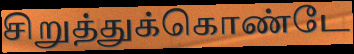
சிறுத்துக்கொண்டே